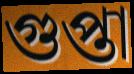
গুপ্তা